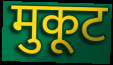
मुकूट